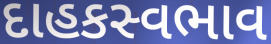
દાહકસ્વભાવ